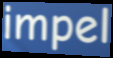
impel